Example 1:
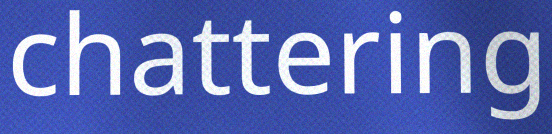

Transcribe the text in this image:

chattering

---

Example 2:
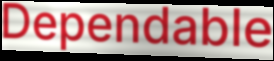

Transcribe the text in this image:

Dependable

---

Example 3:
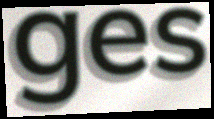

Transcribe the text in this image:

ges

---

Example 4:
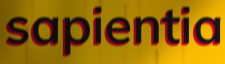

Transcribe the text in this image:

sapientia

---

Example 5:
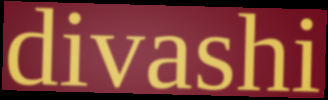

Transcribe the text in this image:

divashi